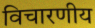
विचारणीय